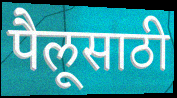
पैलूसाठी